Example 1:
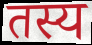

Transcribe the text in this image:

तस्य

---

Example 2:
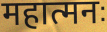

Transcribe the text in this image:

महात्मनः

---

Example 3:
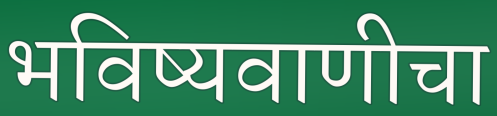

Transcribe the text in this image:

भविष्यवाणीचा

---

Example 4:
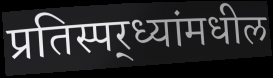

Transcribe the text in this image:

प्रतिस्पर्ध्यांमधील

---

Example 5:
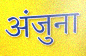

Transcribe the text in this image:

अंजुना